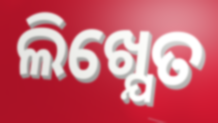
ଲିଖ୍ଯେତ